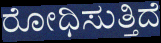
ರೋಧಿಸುತ್ತಿದೆ